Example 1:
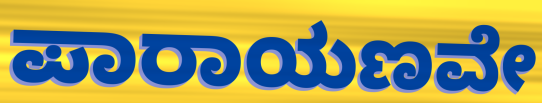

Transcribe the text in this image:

ಪಾರಾಯಣವೇ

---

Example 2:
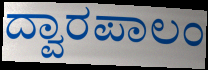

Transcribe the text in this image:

ದ್ವಾರಪಾಲಂ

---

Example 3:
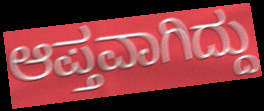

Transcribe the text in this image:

ಆಪ್ತವಾಗಿದ್ದು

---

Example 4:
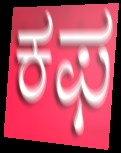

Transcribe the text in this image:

ಕಫ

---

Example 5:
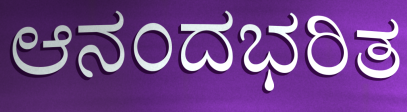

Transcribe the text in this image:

ಆನಂದಭರಿತ